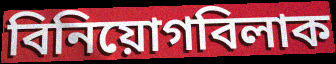
বিনিয়োগবিলাক